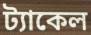
ট্যাকেল